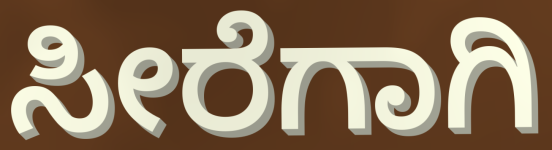
ಸೀರೆಗಾಗಿ